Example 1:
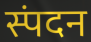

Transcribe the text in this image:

स्पंदन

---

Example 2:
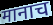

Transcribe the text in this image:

मानाच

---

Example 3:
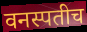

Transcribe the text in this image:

वनस्पतीच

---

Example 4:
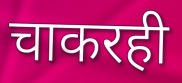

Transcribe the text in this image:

चाकरही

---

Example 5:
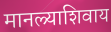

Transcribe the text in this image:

मानल्याशिवाय